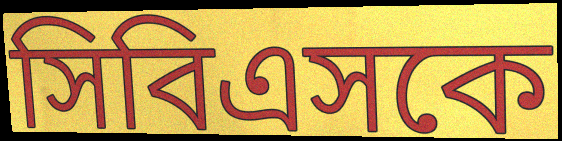
সিবিএসকে